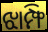
ଝାମ୍ଫି